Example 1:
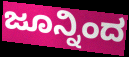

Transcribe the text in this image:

ಜೂನ್ನಿಂದ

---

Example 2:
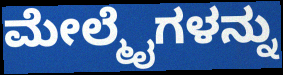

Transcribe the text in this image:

ಮೇಲ್ಮೈಗಳನ್ನು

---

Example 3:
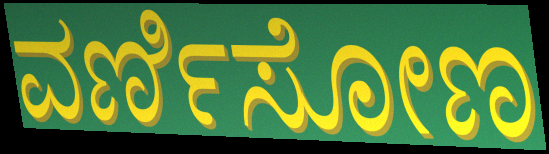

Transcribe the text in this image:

ವರ್ಣಿಸೋಣ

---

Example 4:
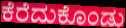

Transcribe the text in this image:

ಕೆರೆದುಕೊಂಡು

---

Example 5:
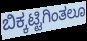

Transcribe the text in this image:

ಬಿಕ್ಕಟ್ಟಿಗಿಂತಲೂ